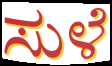
ಸುಳೆ